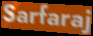
Sarfaraj